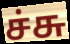
ச்சு